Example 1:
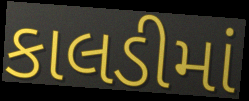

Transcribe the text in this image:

કાલડીમાં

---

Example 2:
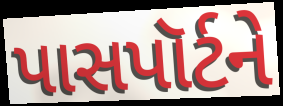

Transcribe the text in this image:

પાસપૉર્ટને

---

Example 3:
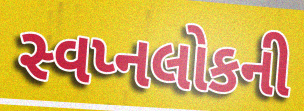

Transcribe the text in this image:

સ્વપ્નલોકની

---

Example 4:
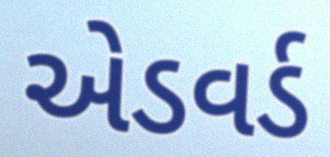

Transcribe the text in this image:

એડવર્ડ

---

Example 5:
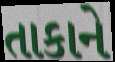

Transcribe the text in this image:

તાકાને